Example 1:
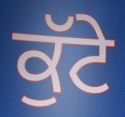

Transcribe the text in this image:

ਕੁੱਟੇ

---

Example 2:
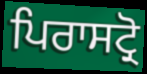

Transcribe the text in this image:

ਪਿਰਾਸਟ੍ਰੋ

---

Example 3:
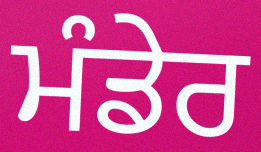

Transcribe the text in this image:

ਮੰਡੇਰ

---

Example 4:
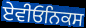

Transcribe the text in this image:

ਏਵੀਓਨਿਕਸ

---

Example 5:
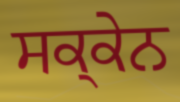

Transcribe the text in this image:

ਸਕ੍ਕੇਨ